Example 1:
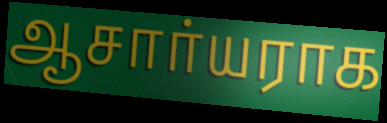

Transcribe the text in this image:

ஆசார்யராக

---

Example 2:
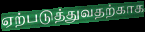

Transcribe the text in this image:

ஏற்படுத்துவதற்காக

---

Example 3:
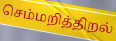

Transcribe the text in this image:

செம்மறித்திறல்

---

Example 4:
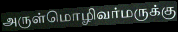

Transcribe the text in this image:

அருள்மொழிவர்மருக்கு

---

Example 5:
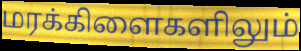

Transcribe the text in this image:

மரக்கிளைகளிலும்